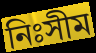
নিঃসীম